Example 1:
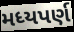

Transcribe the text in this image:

મધ્યપર્ણ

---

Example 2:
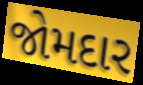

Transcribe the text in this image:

જોમદાર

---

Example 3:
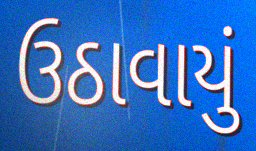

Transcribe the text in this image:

ઉઠાવાયું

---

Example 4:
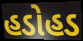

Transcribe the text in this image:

હડોહડ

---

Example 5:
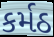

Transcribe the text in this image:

કર્મઠ